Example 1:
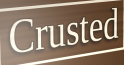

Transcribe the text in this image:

Crusted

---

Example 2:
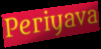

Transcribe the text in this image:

Periyava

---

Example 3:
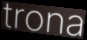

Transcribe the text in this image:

trona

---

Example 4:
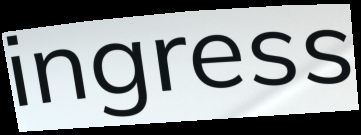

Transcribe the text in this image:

ingress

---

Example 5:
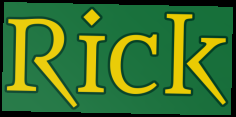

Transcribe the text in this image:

Rick